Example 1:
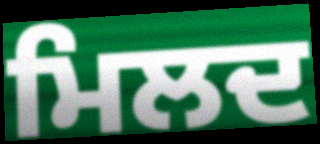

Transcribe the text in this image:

ਮਿਲਦ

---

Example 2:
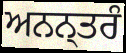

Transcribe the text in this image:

ਅਨਨ੍ਤਰੰ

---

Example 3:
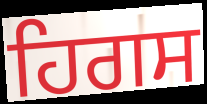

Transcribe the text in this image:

ਹਿਗਸ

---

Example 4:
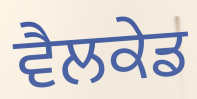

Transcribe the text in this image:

ਵੈਲਕੇਡ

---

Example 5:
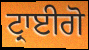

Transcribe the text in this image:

ਟ੍ਰਾਈਗੋ